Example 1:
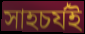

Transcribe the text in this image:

সাহচর্যই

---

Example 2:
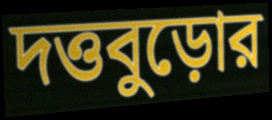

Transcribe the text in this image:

দত্তবুড়োর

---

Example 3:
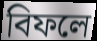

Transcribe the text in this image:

বিফলে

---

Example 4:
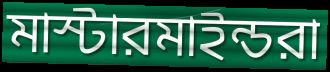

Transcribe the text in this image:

মাস্টারমাইন্ডরা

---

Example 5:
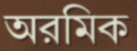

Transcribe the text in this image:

অরমিক